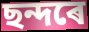
ছন্দৰে